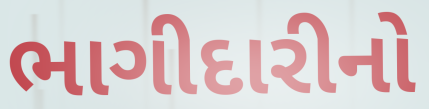
ભાગીદારીનો